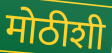
मोठीशी